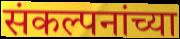
संकल्पनांच्या